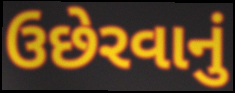
ઉછેરવાનું